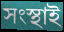
সংস্থাই